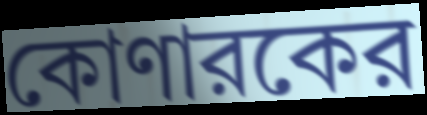
কোণারকের